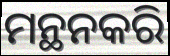
ମନ୍ଥନକରି